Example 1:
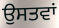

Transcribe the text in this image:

ਉਸਤਵਾਂ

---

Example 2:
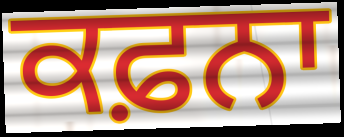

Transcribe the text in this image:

ਕਫ਼ਨਾ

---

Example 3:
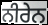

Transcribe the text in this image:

ਨੀਰੇਨ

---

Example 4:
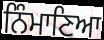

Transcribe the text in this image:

ਨਿੰਮਾਣਿਆ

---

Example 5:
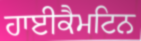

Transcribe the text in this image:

ਹਾਈਕੈਮਟਿਨ